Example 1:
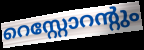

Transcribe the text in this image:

റെസ്റ്റോറന്റും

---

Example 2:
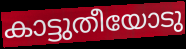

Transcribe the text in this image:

കാട്ടുതീയോടു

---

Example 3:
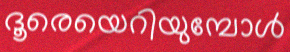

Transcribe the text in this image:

ദൂരെയെറിയുമ്പോൾ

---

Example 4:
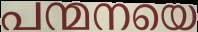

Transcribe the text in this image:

പന്മനയെ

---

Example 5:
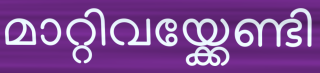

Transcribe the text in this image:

മാറ്റിവയ്ക്കേണ്ടി